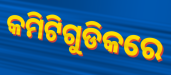
କମିଟିଗୁଡିକରେ